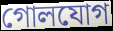
গোলযোগ